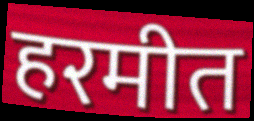
हरमीत